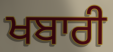
ਖਬਾਰੀ